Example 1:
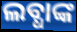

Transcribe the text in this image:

ଲବ୍ଧାଙ୍କ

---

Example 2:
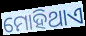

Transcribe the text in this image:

ମୋହିଥାଏ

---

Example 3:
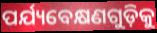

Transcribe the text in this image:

ପର୍ଯ୍ୟବେକ୍ଷଣଗୁଡ଼ିକୁ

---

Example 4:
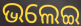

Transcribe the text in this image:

ଭଲେଇ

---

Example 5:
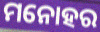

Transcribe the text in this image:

ମନୋହର